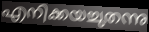
എനിക്കയച്ചുതന്നു